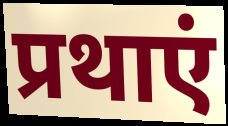
प्रथाएं